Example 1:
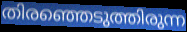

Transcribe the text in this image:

തിരഞ്ഞെടുത്തിരുന്ന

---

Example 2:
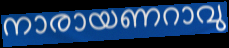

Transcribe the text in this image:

നാരായണറാവു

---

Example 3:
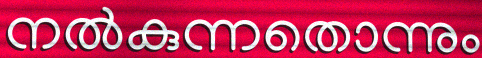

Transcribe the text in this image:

നൽകുന്നതൊന്നും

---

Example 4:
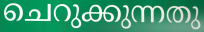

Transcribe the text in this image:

ചെറുക്കുന്നതു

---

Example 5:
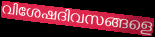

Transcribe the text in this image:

വിശേഷദിവസങ്ങളെ